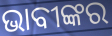
ଭାବୀଙ୍କର